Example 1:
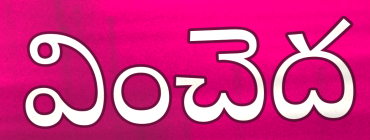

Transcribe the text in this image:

వించెద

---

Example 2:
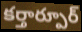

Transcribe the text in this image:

కర్తార్పూర్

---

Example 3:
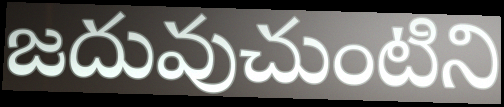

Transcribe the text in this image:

జదువుచుంటిని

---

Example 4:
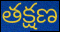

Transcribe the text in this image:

తక్షణ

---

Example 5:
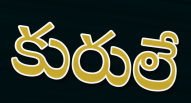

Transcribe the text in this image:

కురులే